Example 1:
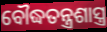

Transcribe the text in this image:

ବୌଦ୍ଧତନ୍ତ୍ରଶାସ୍ତ୍ର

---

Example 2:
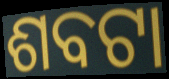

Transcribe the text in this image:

ଶବଟା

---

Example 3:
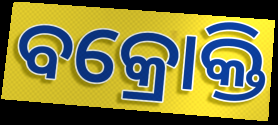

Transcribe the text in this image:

ବକ୍ରୋକ୍ତି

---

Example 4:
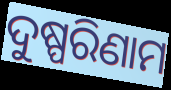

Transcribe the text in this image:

ଦୁଷ୍ପରିଣାମ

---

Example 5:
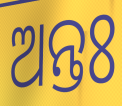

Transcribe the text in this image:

ଅନ୍ତଃ